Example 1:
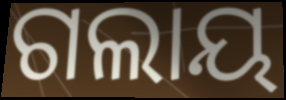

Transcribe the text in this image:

ଗଲାୟ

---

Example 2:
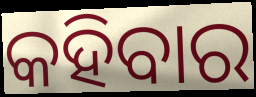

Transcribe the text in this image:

କହିବାର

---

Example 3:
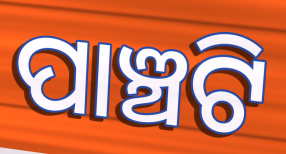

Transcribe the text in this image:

ପାଞ୍ଚଟି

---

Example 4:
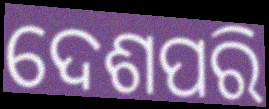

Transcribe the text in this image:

ଦେଶପରି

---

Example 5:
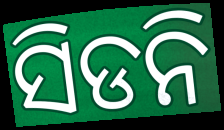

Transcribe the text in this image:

ସିଡନି